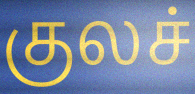
குலச்